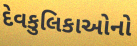
દેવકુલિકાઓનો